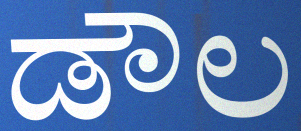
ಡೌಲ